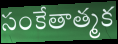
సంకేతాత్మక